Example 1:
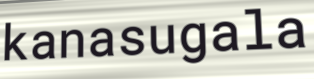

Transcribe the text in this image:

kanasugala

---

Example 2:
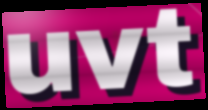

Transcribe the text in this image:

uvt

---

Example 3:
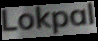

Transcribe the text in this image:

Lokpal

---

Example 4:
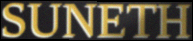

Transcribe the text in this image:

SUNETH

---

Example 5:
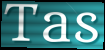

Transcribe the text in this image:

Tas